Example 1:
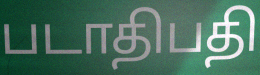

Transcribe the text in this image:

படாதிபதி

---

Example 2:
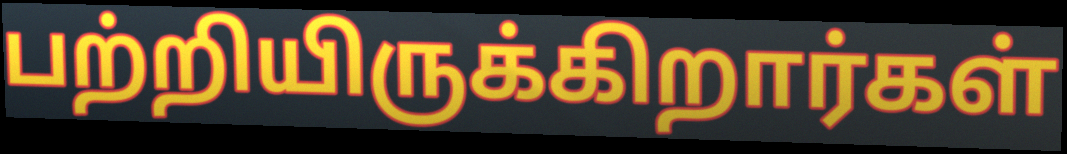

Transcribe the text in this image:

பற்றியிருக்கிறார்கள்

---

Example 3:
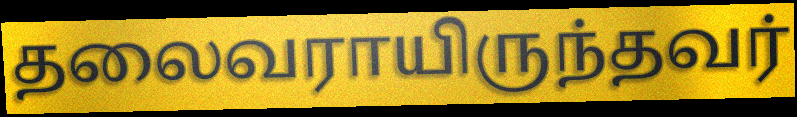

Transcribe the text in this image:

தலைவராயிருந்தவர்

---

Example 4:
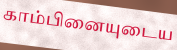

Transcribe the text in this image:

காம்பினையுடைய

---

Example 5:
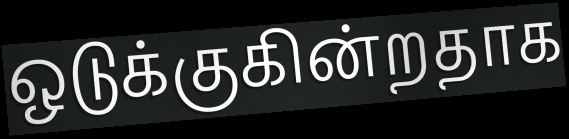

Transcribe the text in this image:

ஒடுக்குகின்றதாக